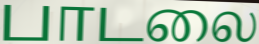
பாடலை